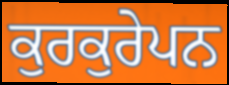
ਕੁਰਕੁਰੇਪਨ